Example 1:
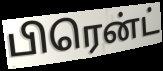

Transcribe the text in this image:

பிரென்ட்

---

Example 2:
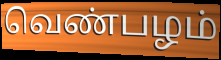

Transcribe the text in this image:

வெண்பழம்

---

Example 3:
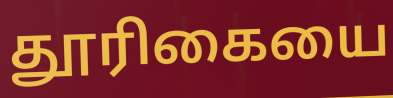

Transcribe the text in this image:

தூரிகையை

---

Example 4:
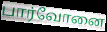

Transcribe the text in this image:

பார்வோனை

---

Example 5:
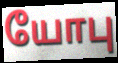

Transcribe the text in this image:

யோபு